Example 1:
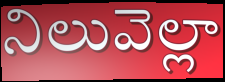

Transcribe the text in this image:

నిలువెల్లా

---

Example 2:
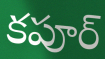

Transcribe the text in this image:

కపూర్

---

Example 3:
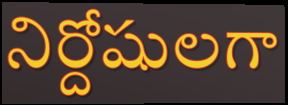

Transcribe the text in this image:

నిర్దోషులగా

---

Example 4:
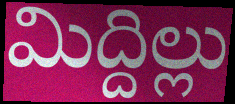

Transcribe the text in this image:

మిద్దిల్లు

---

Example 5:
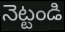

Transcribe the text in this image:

నెట్టండి